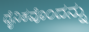
ದೈನಿಕವೊಂದನ್ನು